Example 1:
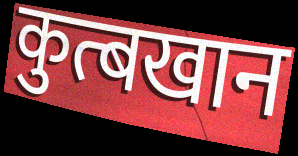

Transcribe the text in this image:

कुत्बखान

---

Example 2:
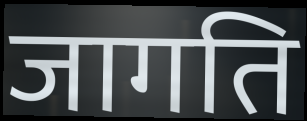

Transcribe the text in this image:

जागति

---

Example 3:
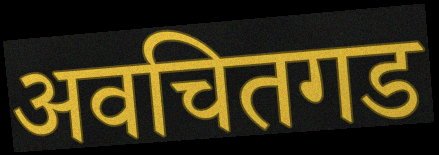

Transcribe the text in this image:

अवचितगड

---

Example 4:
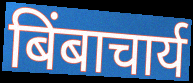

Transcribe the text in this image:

बिंबाचार्य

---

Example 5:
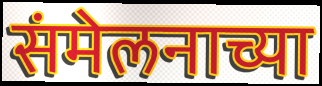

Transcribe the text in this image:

संमेलनाच्या